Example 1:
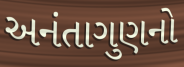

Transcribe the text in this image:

અનંતાગુણનો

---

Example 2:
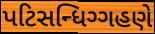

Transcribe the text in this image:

પટિસન્ધિગ્ગહણે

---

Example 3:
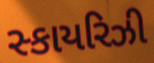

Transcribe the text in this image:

સ્કાયરિઝી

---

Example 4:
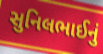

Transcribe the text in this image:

સુનિલભાઈનું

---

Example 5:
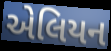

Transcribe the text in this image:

એલિયન